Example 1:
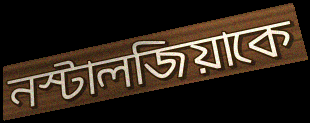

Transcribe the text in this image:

নস্টালজিয়াকে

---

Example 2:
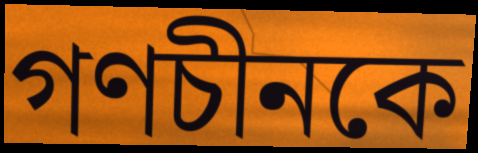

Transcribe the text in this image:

গণচীনকে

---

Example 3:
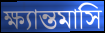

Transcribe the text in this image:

ক্ষ্যান্তমাসি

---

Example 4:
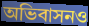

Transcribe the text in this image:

অভিবাসনও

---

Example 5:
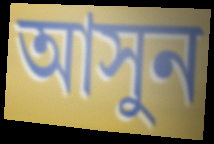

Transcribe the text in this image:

আসুন